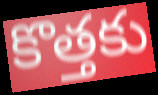
కొత్తకు